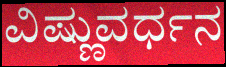
ವಿಷ್ಣುವರ್ಧನ